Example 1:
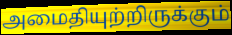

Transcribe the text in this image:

அமைதியுற்றிருக்கும்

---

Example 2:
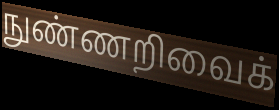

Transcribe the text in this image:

நுண்ணறிவைக்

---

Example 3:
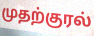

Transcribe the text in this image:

முதற்குரல்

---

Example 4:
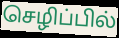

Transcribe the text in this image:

செழிப்பில்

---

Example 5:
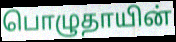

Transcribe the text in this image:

பொழுதாயின்